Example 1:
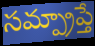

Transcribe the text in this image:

సమ్ప్రాప్తే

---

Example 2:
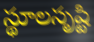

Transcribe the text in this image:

స్థూలసృష్టి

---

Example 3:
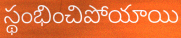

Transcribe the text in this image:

స్థంభించిపోయాయి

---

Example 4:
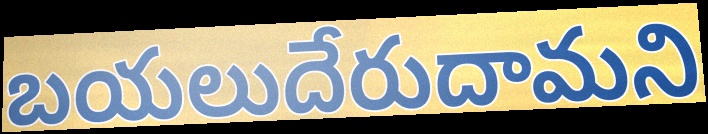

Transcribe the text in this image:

బయలుదేరుదామని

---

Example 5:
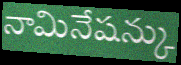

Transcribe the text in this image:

నామినేషన్కు